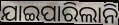
ଯାଇପାରିଲାନି